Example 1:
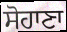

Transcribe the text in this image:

ਸੋਹਾਣਾ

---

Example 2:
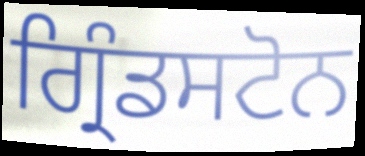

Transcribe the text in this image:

ਗ੍ਰਿੰਡਸਟੋਨ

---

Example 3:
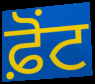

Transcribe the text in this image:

ਫ਼ੋਂਟ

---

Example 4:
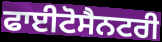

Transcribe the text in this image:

ਫਾਈਟੋਸੈਨਟਰੀ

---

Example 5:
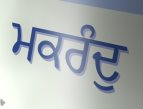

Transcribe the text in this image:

ਮਕਰੰਦੁ